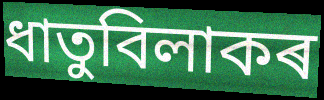
ধাতুবিলাকৰ